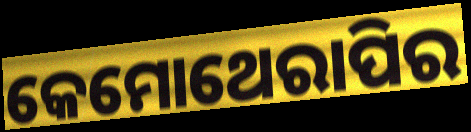
କେମୋଥେରାପିର